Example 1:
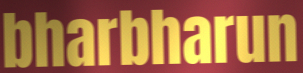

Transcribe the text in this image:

bharbharun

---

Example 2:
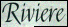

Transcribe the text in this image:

Riviere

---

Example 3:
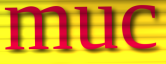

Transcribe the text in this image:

muc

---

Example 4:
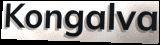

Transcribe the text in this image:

Kongalva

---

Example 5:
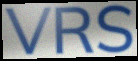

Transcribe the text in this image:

VRS